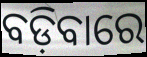
ବଡ଼ିବାରେ